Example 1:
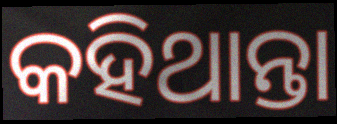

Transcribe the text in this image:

କହିଥାନ୍ତା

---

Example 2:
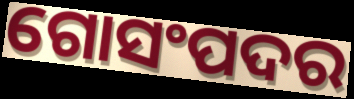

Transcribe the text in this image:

ଗୋସଂପଦର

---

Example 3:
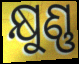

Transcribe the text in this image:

କ୍ଷୁଣ୍ଣ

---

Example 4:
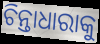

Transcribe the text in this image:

ଚିନ୍ତାଧାରାକୁ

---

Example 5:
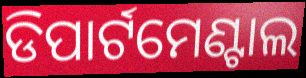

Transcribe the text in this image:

ଡିପାର୍ଟମେଣ୍ଟାଲ